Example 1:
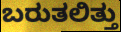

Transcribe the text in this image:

ಬರುತಲಿತ್ತು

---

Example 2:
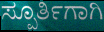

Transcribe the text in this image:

ಸ್ಪೂರ್ತಿಗಾಗಿ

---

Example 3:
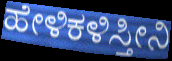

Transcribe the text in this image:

ಹೇಳಿಕಳಿಸ್ತೀನಿ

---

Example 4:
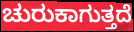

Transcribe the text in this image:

ಚುರುಕಾಗುತ್ತದೆ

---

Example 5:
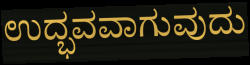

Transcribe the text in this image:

ಉದ್ಭವವಾಗುವುದು